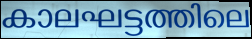
കാലഘട്ടത്തിലെ